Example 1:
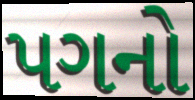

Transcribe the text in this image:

પગનો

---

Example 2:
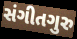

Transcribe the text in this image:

સંગીતગુરુ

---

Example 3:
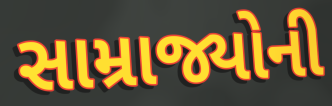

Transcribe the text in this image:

સામ્રાજ્યોની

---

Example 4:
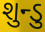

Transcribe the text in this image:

શુન્ડુ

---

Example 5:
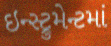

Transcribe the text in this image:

ઇન્સ્ટ્રુમેન્ટમાં